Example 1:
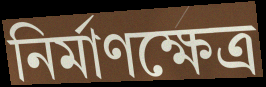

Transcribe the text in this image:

নির্মাণক্ষেত্র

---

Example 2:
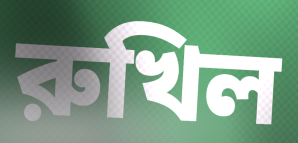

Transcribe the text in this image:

রুখিল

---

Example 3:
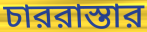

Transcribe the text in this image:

চাররাস্তার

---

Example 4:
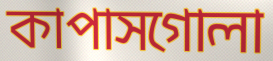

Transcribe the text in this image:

কাপাসগোলা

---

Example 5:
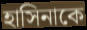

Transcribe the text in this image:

হাসিনাকে